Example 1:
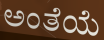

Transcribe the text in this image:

ಅಂತೆಯೆ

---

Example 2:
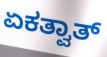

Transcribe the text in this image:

ಏಕತ್ವಾತ್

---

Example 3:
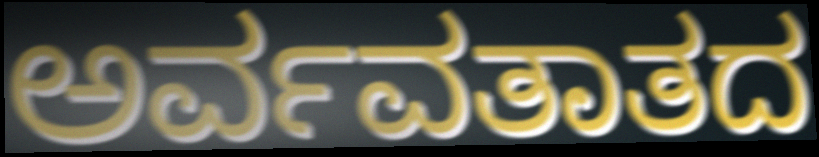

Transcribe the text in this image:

ಅರ್ವವತಾತದ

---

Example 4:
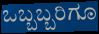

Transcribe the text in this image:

ಒಬ್ಬಬ್ಬರಿಗೂ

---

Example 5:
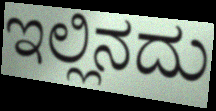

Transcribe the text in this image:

ಇಲ್ಲಿನದು